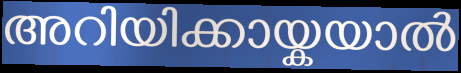
അറിയിക്കായ്കയാൽ